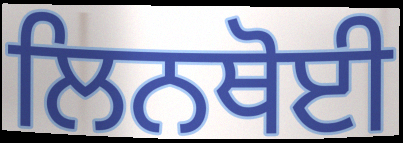
ਲਿਨਥੋਈ